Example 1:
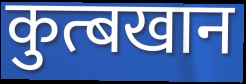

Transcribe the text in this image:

कुत्बखान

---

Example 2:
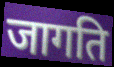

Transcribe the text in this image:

जागति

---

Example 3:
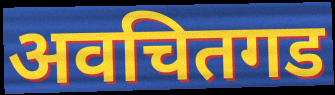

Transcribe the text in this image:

अवचितगड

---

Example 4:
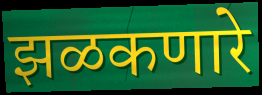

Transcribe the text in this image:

झळकणारे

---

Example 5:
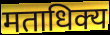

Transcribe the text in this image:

मताधिक्‍य